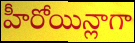
హీరోయిన్లాగా